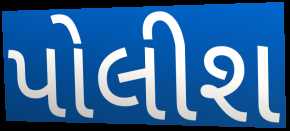
પોલીશ